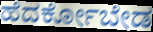
ಹೆದರ್ಕೋಬೇಡ